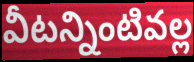
వీటన్నింటివల్ల